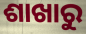
ଶାଖାରୁ